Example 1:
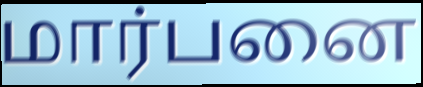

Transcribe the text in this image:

மார்பனை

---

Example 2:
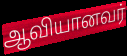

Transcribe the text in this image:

ஆவியானவர்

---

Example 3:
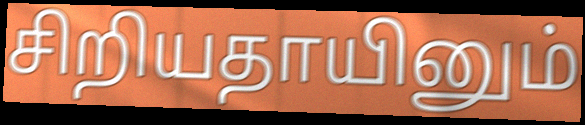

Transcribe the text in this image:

சிறியதாயினும்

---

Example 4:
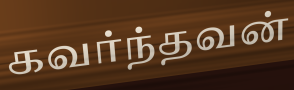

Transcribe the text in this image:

கவர்ந்தவன்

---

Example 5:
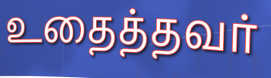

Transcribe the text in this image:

உதைத்தவர்